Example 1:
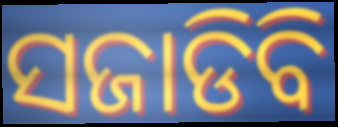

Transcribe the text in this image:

ସଜାଡିବି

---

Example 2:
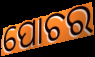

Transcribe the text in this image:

ପୋଚର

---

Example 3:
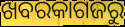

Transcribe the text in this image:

ଖବରକାଗଜରୁ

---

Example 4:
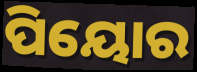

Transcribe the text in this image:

ପିୟୋର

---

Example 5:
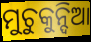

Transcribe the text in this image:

ମୁଚୁକୁନ୍ଦିଆ